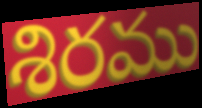
శిరము